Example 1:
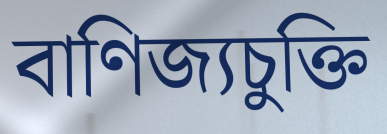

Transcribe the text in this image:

বাণিজ্যচুক্তি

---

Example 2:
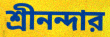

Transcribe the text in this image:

শ্রীনন্দার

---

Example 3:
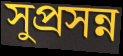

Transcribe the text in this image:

সুপ্রসন্ন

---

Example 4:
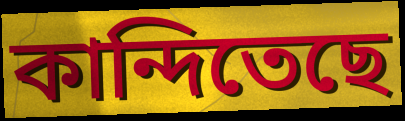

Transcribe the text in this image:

কান্দিতেছে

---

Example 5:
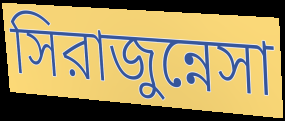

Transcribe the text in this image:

সিরাজুন্নেসা